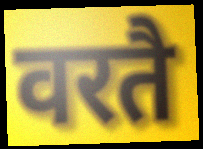
वरतै